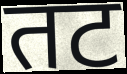
तट